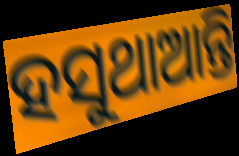
ହସୁଥାଆନ୍ତି